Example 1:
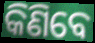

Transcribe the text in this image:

କିଣିବେ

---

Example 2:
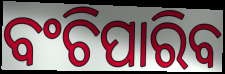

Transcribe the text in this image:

ବଂଚିପାରିବ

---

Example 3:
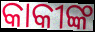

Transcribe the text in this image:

କାକୀଙ୍କ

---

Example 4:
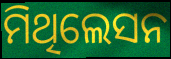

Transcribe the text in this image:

ମିଥିଲେସନ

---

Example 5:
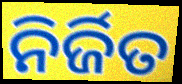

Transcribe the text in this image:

ନିର୍ଜିତ